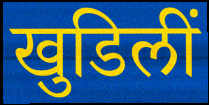
खुडिलीं